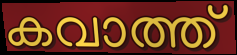
കവാത്ത്